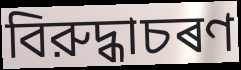
বিৰুদ্ধাচৰণ